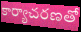
కార్యాచరణతో